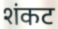
शंकट